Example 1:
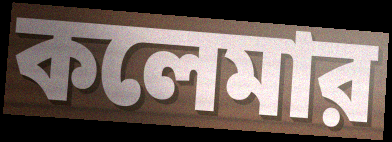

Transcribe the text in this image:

কলেমার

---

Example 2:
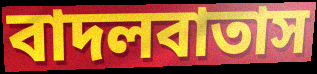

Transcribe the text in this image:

বাদলবাতাস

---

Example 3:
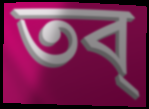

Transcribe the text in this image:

তব্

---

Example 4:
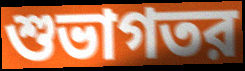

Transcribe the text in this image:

শুভাগতর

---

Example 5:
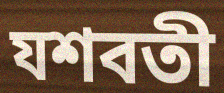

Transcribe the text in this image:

যশবতী